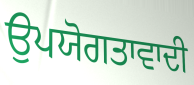
ਉਪਯੋਗਤਾਵਾਦੀ